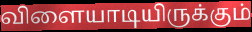
விளையாடியிருக்கும்